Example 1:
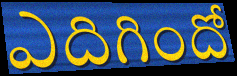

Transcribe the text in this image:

ఎదిగిందో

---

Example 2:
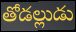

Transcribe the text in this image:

తోడల్లుడు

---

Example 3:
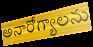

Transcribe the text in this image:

అనారోగ్యాలను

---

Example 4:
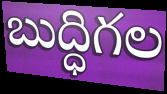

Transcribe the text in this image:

బుద్ధిగల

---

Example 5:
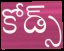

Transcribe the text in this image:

కోడ్స్